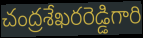
చంద్రశేఖరరెడ్డిగారి